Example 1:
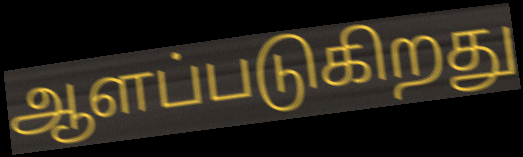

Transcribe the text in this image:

ஆளப்படுகிறது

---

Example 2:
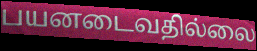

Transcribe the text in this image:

பயனடைவதில்லை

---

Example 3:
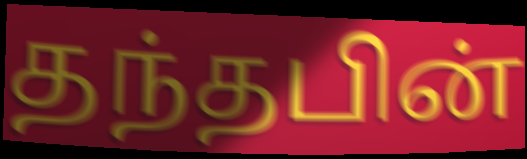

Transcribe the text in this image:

தந்தபின்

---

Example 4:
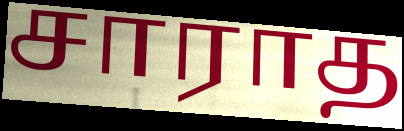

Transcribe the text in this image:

சாராத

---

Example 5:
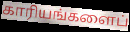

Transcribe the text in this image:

காரியங்களைப்